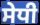
ਸੇਧੀ